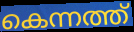
കെന്നത്ത്